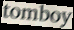
tomboy